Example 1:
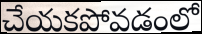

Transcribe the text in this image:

చేయకపోవడంలో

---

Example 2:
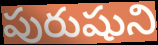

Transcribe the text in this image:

పురుషుని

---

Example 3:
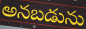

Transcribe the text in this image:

అనబడును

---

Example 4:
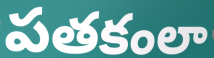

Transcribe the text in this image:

పతకంలా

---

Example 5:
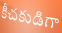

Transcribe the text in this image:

కీచకుడిగా